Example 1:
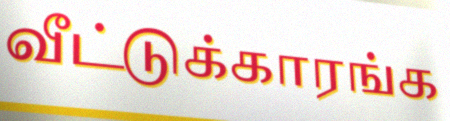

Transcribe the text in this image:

வீட்டுக்காரங்க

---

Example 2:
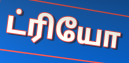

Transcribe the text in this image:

ட்ரியோ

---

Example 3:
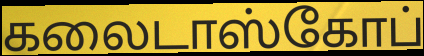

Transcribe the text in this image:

கலைடாஸ்கோப்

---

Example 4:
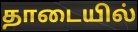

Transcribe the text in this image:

தாடையில்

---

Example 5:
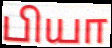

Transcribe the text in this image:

பியா